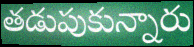
తడుపుకున్నారు